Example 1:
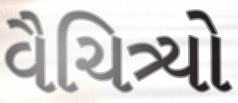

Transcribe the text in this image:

વૈચિત્ર્યો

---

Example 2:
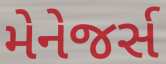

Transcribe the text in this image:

મેનેજર્સ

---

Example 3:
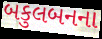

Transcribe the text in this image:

બકુલબનના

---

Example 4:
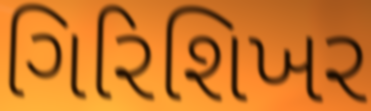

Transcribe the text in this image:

ગિરિશિખર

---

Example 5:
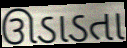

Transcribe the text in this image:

ઊડાડતા